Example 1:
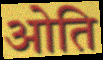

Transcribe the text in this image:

ओति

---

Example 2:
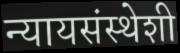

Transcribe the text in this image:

न्यायसंस्थेशी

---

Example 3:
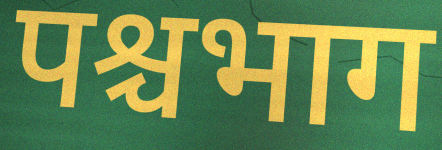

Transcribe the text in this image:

पश्चभाग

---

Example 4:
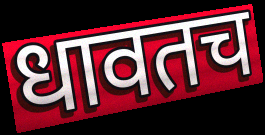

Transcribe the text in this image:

धावतच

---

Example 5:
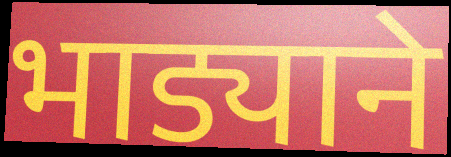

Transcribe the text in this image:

भाड्याने